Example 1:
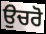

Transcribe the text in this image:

ਉਚਰੋ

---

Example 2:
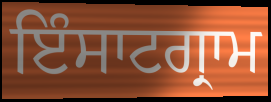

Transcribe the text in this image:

ਇੰਸਾਟਗ੍ਰਾਮ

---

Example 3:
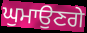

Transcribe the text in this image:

ਘੁਮਾਉਣਗੇ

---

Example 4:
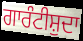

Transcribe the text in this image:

ਗਾਰੰਟੀਸ਼ੁਦਾ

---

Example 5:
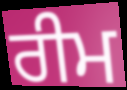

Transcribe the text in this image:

ਰੀਮ